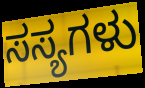
ಸಸ್ಯಗಳು